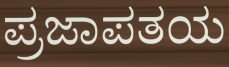
ಪ್ರಜಾಪತಯ